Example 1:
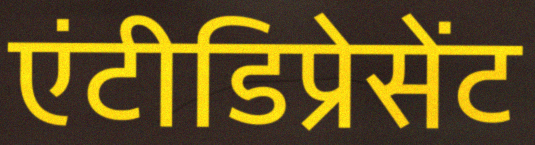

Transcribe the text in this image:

एंटीडिप्रेसेंट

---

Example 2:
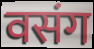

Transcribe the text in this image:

वसंग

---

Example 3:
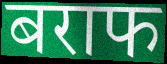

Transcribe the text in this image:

बराफ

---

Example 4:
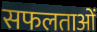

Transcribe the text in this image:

सफलताओं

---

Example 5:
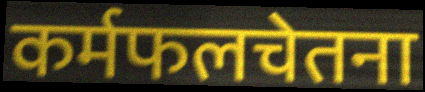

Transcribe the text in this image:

कर्मफलचेतना